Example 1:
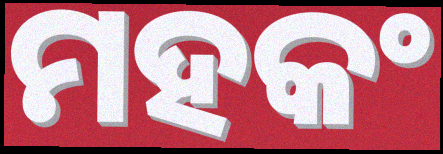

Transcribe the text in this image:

ମହକଂ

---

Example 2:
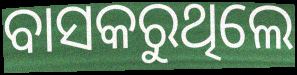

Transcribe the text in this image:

ବାସକରୁଥିଲେ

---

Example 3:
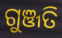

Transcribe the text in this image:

ଗୁଞ୍ଜତି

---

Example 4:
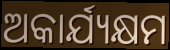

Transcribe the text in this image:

ଅକାର୍ଯ୍ୟକ୍ଷମ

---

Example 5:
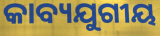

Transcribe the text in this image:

କାବ୍ୟଯୁଗୀୟ